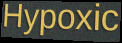
Hypoxic